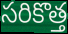
సరికొత్త